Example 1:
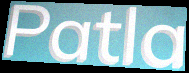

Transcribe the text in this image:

Patla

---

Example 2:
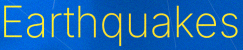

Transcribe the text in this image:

Earthquakes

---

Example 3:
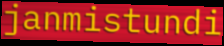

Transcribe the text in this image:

janmistundi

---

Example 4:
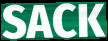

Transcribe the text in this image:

SACK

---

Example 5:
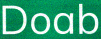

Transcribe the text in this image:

Doab